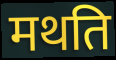
मथति